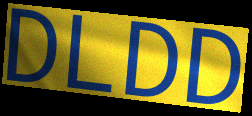
DLDD